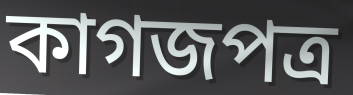
কাগজপত্ৰ